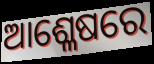
ଆଶ୍ଳେଷରେ